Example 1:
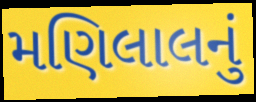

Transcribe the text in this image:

મણિલાલનું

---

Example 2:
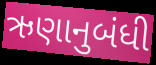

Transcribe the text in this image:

ઋણાનુબંધી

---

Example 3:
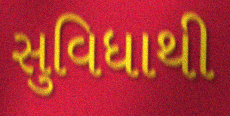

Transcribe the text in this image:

સુવિધાથી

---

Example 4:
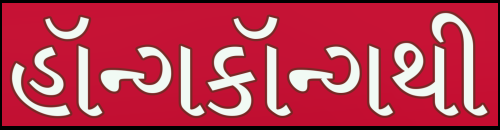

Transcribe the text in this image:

હૉન્ગકૉન્ગથી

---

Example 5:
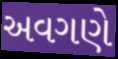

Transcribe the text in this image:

અવગણે